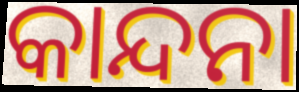
କାନ୍ଦନା